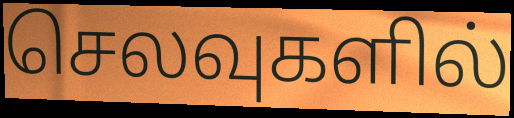
செலவுகளில்